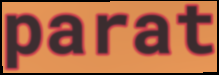
parat